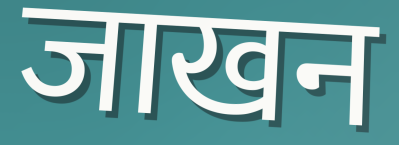
जाखन